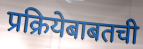
प्रक्रियेबाबतची